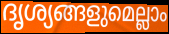
ദൃശ്യങ്ങളുമെല്ലാം